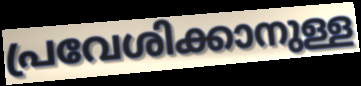
പ്രവേശിക്കാനുള്ള